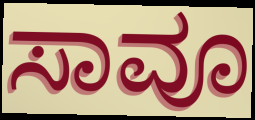
ಸಾವೂ